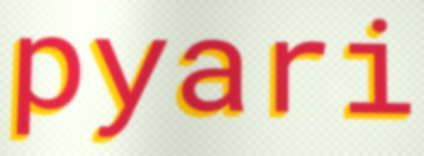
pyari